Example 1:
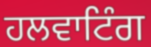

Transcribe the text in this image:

ਹਲਵਾਟਿੰਗ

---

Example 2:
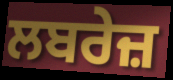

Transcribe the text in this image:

ਲਬਰੇਜ਼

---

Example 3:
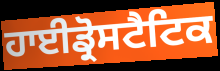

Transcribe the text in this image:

ਹਾਈਡ੍ਰੋਸਟੈਟਿਕ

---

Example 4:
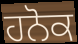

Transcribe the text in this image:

ਹਨੋਕ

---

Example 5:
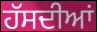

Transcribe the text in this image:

ਹੱਸਦੀਆਂ